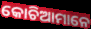
କୋଚିଆମାନେ